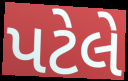
પટેલે